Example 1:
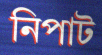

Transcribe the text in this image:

নিপাট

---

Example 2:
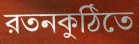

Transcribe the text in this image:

রতনকুঠিতে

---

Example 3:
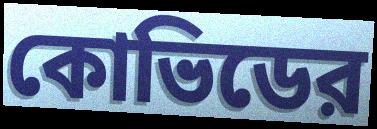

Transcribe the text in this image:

কোভিডের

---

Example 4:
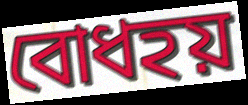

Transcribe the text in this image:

বোধহয়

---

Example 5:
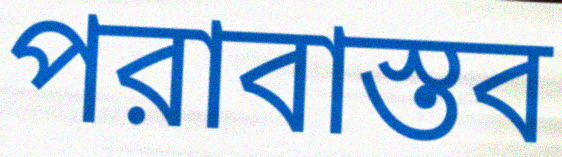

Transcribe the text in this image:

পরাবাস্তব